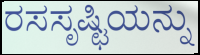
ರಸಸೃಷ್ಟಿಯನ್ನು